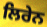
ਲਿਰੇਨ